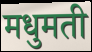
मधुमती